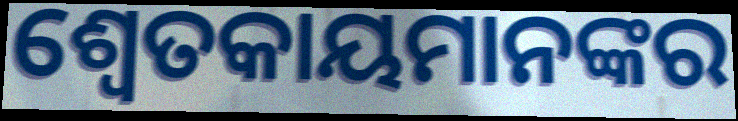
ଶ୍ବେତକାୟମାନଙ୍କର